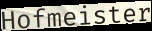
Hofmeister